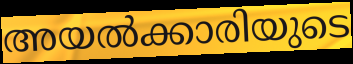
അയൽക്കാരിയുടെ